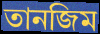
তানজিম